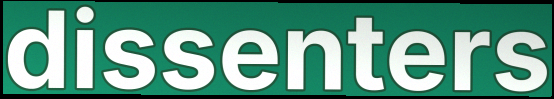
dissenters